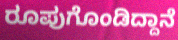
ರೂಪುಗೊಂಡಿದ್ದಾನೆ